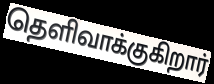
தெளிவாக்குகிறார்